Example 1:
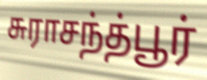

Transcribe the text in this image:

சுராசந்த்பூர்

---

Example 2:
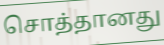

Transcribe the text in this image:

சொத்தானது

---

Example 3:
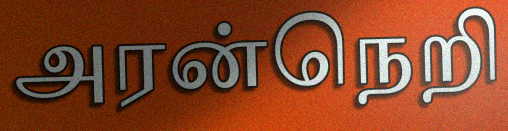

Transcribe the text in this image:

அரன்நெறி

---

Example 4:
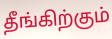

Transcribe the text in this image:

தீங்கிற்கும்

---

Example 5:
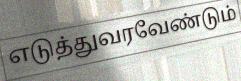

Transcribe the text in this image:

எடுத்துவரவேண்டும்